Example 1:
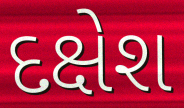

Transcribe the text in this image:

દક્ષેશ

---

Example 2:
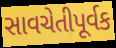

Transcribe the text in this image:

સાવચેતીપૂર્વક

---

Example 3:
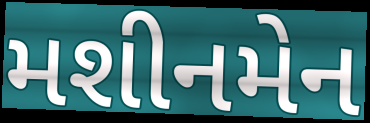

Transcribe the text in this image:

મશીનમેન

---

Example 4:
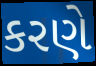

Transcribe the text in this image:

કરણે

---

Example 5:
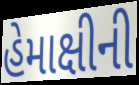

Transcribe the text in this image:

હેમાક્ષીની